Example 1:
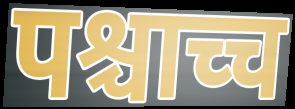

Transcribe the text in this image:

पश्चाच्च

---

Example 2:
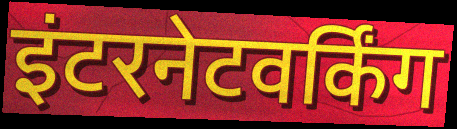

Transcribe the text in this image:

इंटरनेटवर्किंग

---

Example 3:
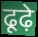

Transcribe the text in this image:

ढूढ़े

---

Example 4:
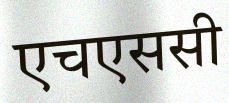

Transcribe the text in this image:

एचएससी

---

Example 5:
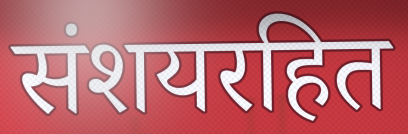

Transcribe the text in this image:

संशयरहित